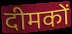
दीमकों